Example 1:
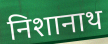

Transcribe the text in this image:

निशानाथ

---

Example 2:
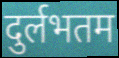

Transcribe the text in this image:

दुर्लभतम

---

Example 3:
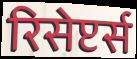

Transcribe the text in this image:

रिसेप्टर्स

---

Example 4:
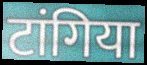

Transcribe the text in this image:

टांगिया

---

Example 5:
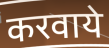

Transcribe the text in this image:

करवाये